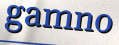
gamno